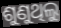
ଶୁଣୁଥିଲୁ